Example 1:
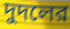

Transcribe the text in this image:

দুদলের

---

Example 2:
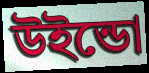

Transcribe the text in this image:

উইন্ডো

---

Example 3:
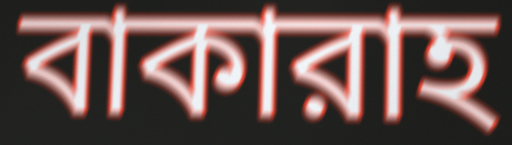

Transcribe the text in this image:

বাকারাহ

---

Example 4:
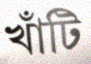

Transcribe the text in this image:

খাঁটি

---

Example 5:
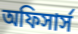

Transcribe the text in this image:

অফিসার্স